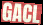
GACL